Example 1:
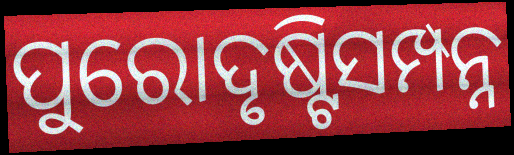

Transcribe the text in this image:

ପୁରୋଦୃଷ୍ଟିସମ୍ପନ୍ନ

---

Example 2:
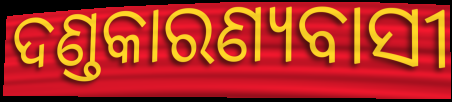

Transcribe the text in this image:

ଦଣ୍ଡକାରଣ୍ୟବାସୀ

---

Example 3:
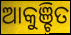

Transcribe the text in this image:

ଆକୁଞ୍ଚିତ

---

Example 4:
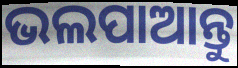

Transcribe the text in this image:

ଭଲପାଆନ୍ତୁ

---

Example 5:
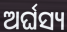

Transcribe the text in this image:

ଅର୍ଘସ୍ୟ